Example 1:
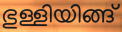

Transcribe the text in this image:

ഭുള്ളിയിങ്ങ്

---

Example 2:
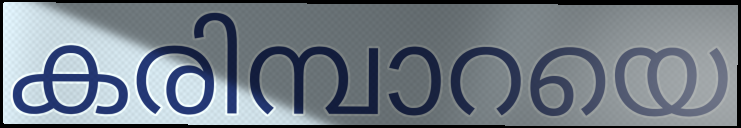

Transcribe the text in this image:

കരിമ്പാറയെ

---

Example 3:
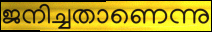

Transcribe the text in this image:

ജനിച്ചതാണെന്നു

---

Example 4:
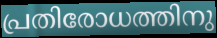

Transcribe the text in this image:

പ്രതിരോധത്തിനു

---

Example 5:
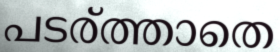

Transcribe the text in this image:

പടര്ത്താതെ